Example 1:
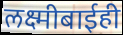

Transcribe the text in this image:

लक्ष्मीबाईही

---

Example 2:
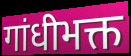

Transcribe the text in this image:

गांधीभक्त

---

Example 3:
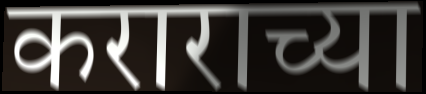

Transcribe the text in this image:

कराराच्या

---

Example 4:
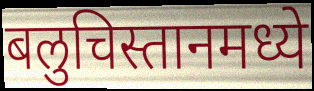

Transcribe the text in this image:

बलुचिस्तानमध्ये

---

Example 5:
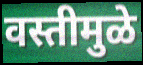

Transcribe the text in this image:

वस्तीमुळे